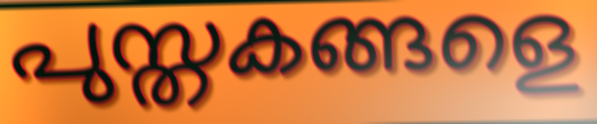
പുസ്തകങ്ങളെ